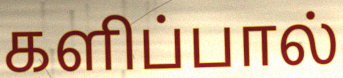
களிப்பால்